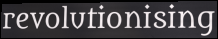
revolutionising